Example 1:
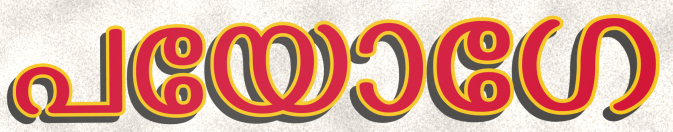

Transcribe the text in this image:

പയോഗേ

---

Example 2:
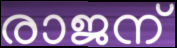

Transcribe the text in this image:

രാജന്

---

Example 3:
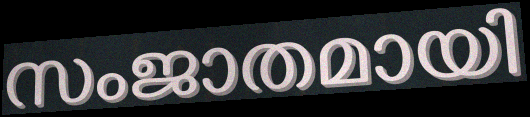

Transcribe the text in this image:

സംജാതമായി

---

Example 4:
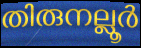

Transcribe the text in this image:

തിരുനല്ലൂർ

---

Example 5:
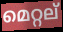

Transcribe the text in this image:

മെറ്റല്